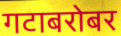
गटाबरोबर